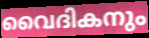
വൈദികനും